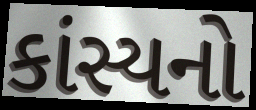
કાંસ્યનો